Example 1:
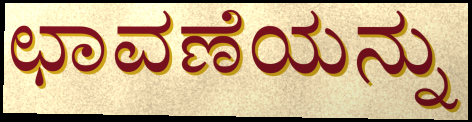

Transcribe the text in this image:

ಛಾವಣೆಯನ್ನು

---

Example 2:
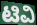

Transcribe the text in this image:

ಟಿವಿ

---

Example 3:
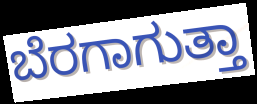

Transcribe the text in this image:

ಬೆರಗಾಗುತ್ತಾ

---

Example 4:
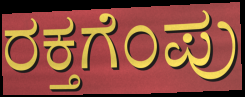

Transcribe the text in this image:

ರಕ್ತಗೆಂಪು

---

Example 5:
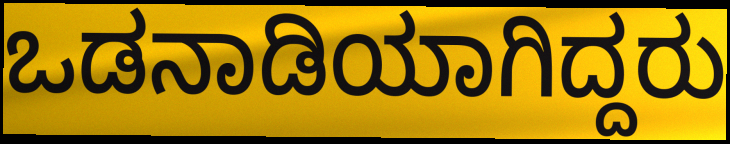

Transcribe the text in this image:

ಒಡನಾಡಿಯಾಗಿದ್ದರು